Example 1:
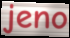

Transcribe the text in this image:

jeno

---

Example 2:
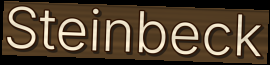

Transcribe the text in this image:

Steinbeck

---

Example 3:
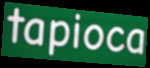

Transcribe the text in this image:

tapioca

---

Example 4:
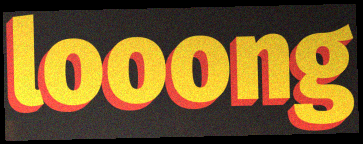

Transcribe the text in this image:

looong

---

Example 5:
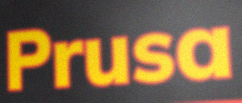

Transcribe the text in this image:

Prusa